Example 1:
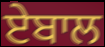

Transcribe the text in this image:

ਏਬਾਲ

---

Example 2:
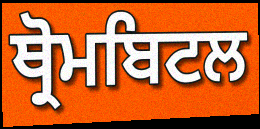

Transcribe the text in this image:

ਥ੍ਰੋਮਬਿਟਲ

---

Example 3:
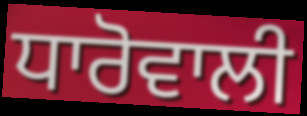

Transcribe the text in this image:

ਧਾਰੋਵਾਲੀ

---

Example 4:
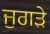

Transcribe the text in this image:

ਜੁਗੜੇ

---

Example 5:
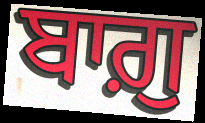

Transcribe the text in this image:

ਬਾਗ਼ੁ